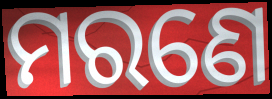
ମରଣେ